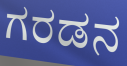
ಗರಡನ